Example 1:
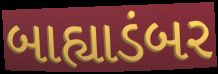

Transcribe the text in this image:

બાહ્યાડંબર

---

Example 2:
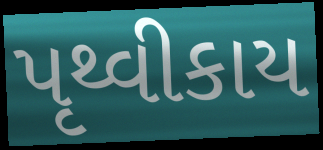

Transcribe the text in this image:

પૃથ્વીકાય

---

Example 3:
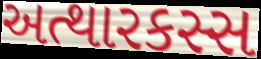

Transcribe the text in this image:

અત્થારકસ્સ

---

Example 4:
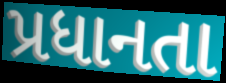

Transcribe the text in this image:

પ્રધાનતા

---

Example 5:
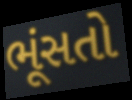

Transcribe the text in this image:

ભૂંસતો